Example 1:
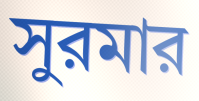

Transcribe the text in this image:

সুরমার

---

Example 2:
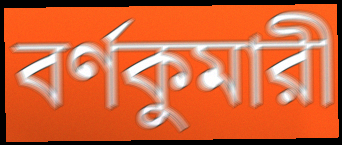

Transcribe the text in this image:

বর্ণকুমারী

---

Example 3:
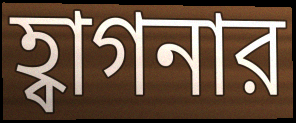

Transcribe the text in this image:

হ্বাগনার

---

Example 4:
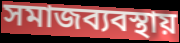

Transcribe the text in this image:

সমাজব্যবস্থায়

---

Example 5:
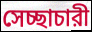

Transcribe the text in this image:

সেচ্ছাচারী